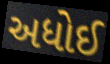
અધોઈ